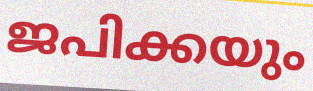
ജപിക്കയും